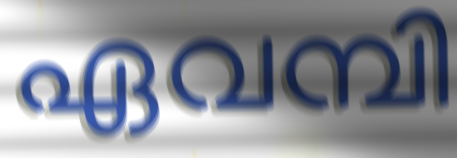
ഏവമ്പി